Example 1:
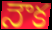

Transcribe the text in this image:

నౌక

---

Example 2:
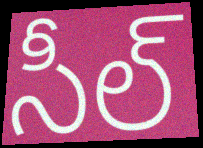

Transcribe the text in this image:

సీల్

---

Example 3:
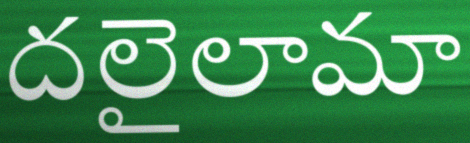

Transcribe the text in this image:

దలైలామా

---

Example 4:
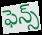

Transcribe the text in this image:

ఫెన్స్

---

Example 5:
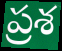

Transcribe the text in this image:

ప్రశ